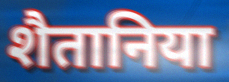
शैतानिया